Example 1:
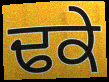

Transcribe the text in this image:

ਢਕੇ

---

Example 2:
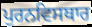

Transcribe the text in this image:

ਪੁਰਨਵਿਸਥਾਰ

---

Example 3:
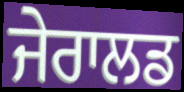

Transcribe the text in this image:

ਜੇਰਾਲਡ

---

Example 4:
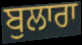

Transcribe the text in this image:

ਬੁਲਾਰਾ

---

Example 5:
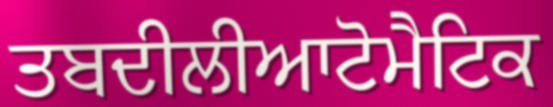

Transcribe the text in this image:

ਤਬਦੀਲੀਆਟੋਮੈਟਿਕ